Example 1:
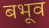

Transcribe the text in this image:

बभूव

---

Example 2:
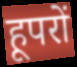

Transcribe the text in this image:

हूपरों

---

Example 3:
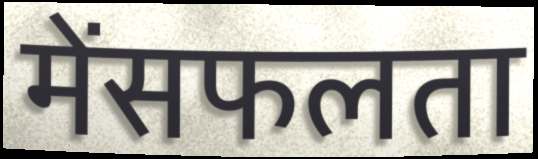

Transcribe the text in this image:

मेंसफलता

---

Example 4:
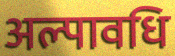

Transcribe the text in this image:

अल्पावधि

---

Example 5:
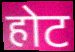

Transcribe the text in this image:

होट